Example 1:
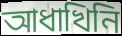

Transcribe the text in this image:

আধাখিনি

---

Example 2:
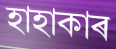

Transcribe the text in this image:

হাহাকাৰ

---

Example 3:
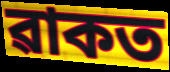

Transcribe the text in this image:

ৱাকত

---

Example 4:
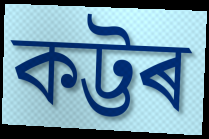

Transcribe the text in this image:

কট্টৰ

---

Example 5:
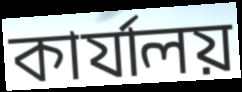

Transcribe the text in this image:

কাৰ্যালয়